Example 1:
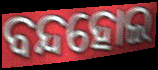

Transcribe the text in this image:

ବନ୍ଦହୋଇ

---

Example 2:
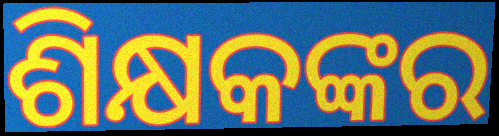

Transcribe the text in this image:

ଶିକ୍ଷକଙ୍କର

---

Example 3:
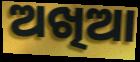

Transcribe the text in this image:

ଅଖିଆ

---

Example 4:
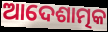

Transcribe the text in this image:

ଆଦେଶାତ୍ମକ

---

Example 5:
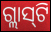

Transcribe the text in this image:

ଗ୍ଲାସ୍‍ଟି